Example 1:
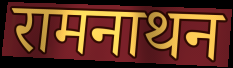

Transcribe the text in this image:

रामनाथन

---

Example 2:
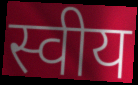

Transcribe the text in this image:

स्वीय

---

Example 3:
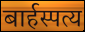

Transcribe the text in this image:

बार्हस्पत्य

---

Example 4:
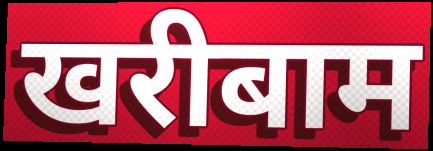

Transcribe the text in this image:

खरीबाम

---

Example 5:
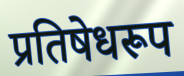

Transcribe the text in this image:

प्रतिषेधरूप